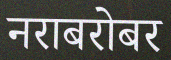
नराबरोबर